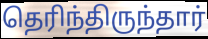
தெரிந்திருந்தார்